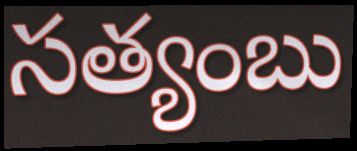
సత్యంబు